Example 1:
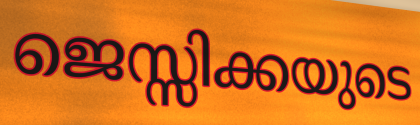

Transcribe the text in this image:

ജെസ്സിക്കയുടെ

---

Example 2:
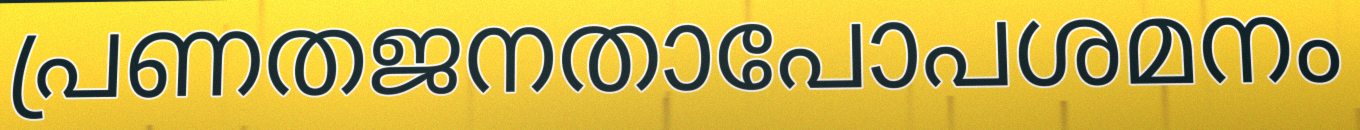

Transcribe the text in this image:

പ്രണതജനതാപോപശമനം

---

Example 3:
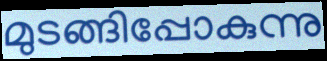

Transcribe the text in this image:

മുടങ്ങിപ്പോകുന്നു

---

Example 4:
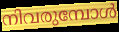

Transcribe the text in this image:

നിവരുമ്പോൾ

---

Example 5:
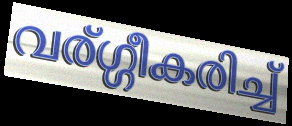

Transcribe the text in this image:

വര്ഗ്ഗീകരിച്ച്